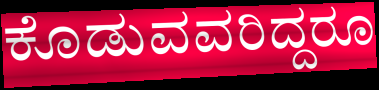
ಕೊಡುವವರಿದ್ದರೂ